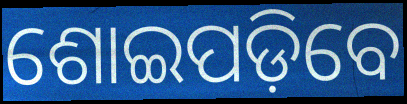
ଶୋଇପଡ଼ିବେ